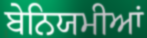
ਬੇਨਿਯਮੀਆਂ